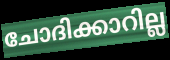
ചോദിക്കാറില്ല